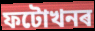
ফটোখনৰ